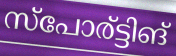
സ്പോര്ട്ടിങ്